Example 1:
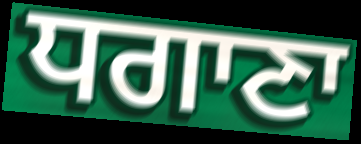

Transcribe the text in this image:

ਧਗਾਣਾ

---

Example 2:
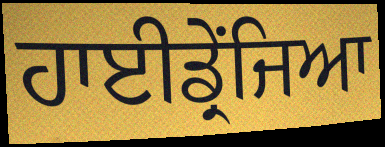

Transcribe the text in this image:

ਹਾਈਡ੍ਰੇਂਜਿਆ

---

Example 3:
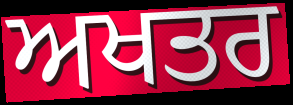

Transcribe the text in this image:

ਅਖਤਰ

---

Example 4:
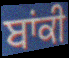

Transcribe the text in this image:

ਬਾਂਕੀ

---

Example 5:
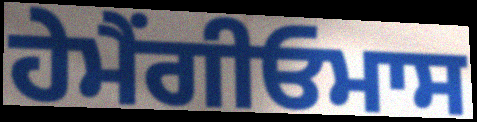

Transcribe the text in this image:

ਹੇਮੈਂਗੀਓਮਾਸ